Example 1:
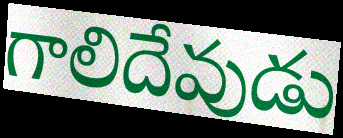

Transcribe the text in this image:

గాలిదేవుడు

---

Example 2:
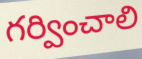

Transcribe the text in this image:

గర్వించాలి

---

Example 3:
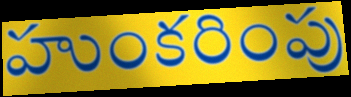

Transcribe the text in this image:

హుంకరింపు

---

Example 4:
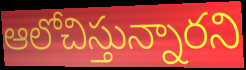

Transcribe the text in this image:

ఆలోచిస్తున్నారని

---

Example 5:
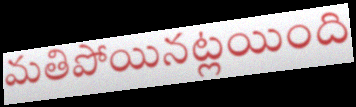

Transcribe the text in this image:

మతిపోయినట్లయింది